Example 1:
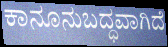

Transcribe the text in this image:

ಕಾನೂನುಬದ್ಧವಾಗಿದೆ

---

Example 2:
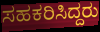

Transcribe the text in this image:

ಸಹಕರಿಸಿದ್ದರು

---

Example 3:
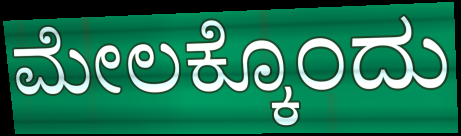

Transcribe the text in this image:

ಮೇಲಕ್ಕೊಂದು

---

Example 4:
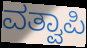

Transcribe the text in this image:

ವತ್ವಾಪಿ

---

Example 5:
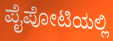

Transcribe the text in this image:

ಪೈಪೋಟಿಯಲ್ಲಿ